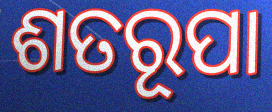
ଶତରୂପା